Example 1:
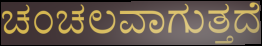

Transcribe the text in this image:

ಚಂಚಲವಾಗುತ್ತದೆ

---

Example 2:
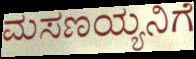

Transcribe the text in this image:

ಮಸಣಯ್ಯನಿಗೆ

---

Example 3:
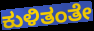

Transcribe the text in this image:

ಕುಳಿತಂತೇ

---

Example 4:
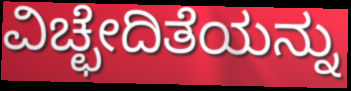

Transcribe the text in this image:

ವಿಚ್ಛೇದಿತೆಯನ್ನು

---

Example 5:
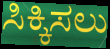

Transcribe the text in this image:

ಸಿಕ್ಕಿಸಲು